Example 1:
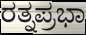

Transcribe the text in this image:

ರತ್ನಪ್ರಭಾ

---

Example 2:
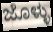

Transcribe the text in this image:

ಜೊಳ್ಳು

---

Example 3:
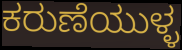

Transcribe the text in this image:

ಕರುಣೆಯುಳ್ಳ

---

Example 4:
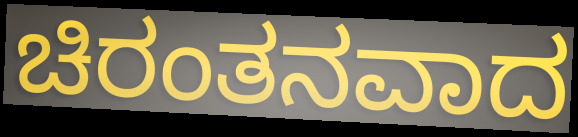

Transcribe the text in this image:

ಚಿರಂತನವಾದ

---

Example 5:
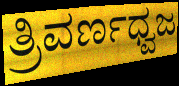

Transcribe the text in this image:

ತ್ರಿವರ್ಣಧ್ವಜ